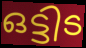
ഒട്ടിട